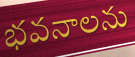
భవనాలను